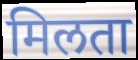
मिलता